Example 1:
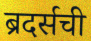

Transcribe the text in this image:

ब्रदर्सची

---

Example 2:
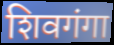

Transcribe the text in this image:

शिवगंगा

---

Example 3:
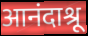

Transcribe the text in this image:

आनंदाश्रू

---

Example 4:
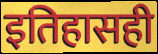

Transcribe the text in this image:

इतिहासही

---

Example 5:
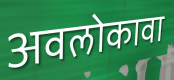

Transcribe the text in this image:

अवलोकावा